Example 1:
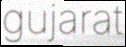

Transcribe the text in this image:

gujarat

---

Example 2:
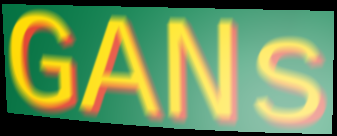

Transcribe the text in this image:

GANs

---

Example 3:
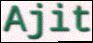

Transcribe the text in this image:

Ajit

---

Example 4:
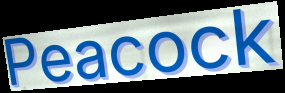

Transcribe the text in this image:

Peacock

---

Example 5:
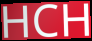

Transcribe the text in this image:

HCH